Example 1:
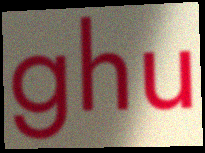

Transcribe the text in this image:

ghu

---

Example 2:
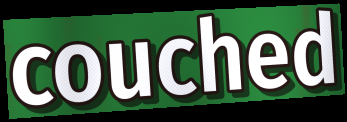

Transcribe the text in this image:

couched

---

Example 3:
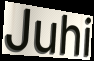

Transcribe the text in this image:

Juhi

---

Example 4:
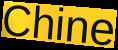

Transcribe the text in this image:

Chine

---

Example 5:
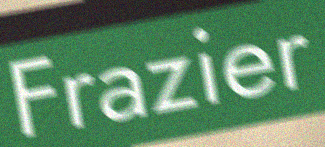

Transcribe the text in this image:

Frazier